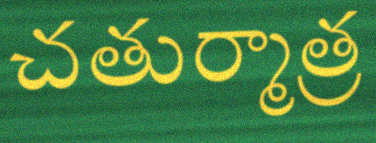
చతుర్మాత్ర